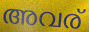
അവര്